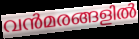
വൻമരങ്ങളിൽ